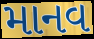
માનવ